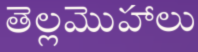
తెల్లమొహాలు